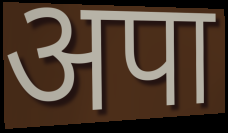
अपा